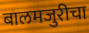
बालमजुरीचा